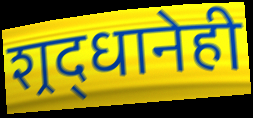
श्रद्धानेही